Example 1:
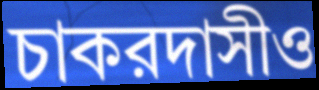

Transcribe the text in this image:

চাকরদাসীও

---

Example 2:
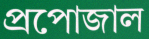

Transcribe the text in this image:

প্রপোজাল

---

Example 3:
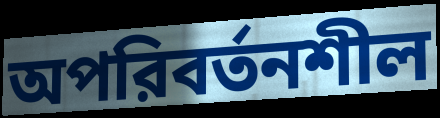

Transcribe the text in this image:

অপরিবর্তনশীল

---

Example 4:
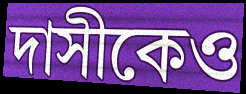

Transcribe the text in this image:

দাসীকেও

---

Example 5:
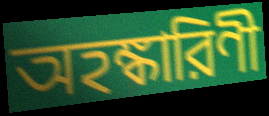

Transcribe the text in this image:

অহঙ্কারিণী